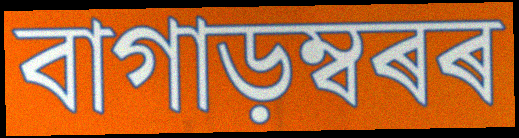
বাগাড়ম্বৰৰ